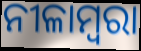
ନୀଳାମ୍ବରା